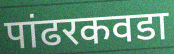
पांढरकवडा